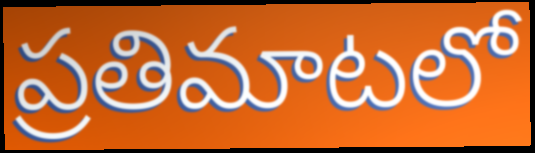
ప్రతిమాటలో